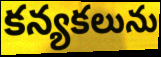
కన్యకలును